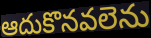
ఆదుకొనవలెను